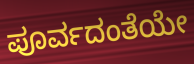
ಪೂರ್ವದಂತೆಯೇ